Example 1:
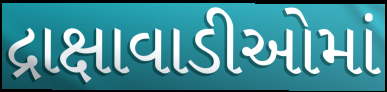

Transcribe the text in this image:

દ્રાક્ષાવાડીઓમાં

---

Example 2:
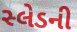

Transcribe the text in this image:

સ્લેડની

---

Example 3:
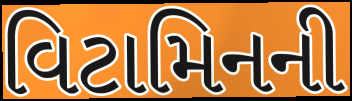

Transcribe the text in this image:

વિટામિનની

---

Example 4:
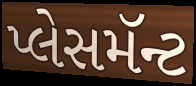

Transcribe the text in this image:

પ્લેસમૅન્ટ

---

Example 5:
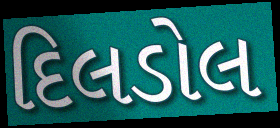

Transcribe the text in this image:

દિલડોલ